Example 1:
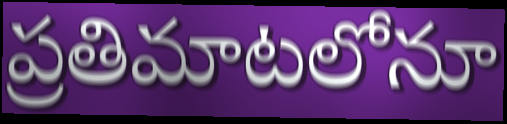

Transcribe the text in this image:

ప్రతిమాటలోనూ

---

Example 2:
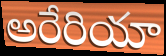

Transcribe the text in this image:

అరేరియా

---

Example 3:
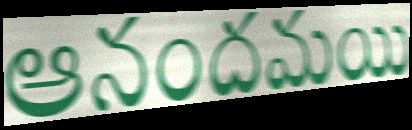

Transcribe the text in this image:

ఆనందమయి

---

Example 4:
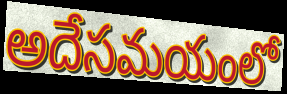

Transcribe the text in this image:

అదేసమయంలో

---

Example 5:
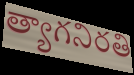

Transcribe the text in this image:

త్యాగనిరతి